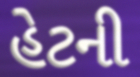
હેટની